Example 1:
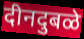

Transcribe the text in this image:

दीनदुबळे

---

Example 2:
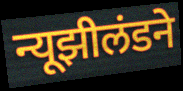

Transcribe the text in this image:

न्यूझीलंडने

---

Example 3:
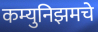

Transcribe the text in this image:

कम्युनिझमचे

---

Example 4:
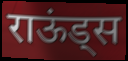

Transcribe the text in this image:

राऊंड्स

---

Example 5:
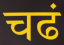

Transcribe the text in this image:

चढं